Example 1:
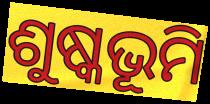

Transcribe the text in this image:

ଶୁଷ୍କଭୂମି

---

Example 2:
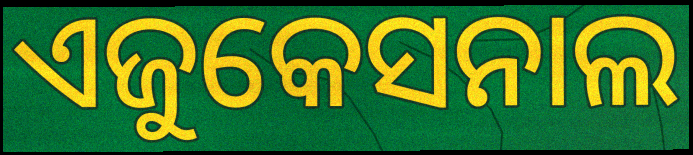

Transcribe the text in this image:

ଏଜୁକେସନାଲ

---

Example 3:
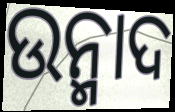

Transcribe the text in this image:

ଉନ୍ମାଦ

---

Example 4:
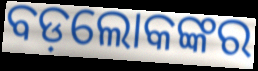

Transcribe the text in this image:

ବଡ଼ଲୋକଙ୍କର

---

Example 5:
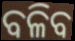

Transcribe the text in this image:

ବଳିବ